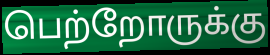
பெற்றோருக்கு